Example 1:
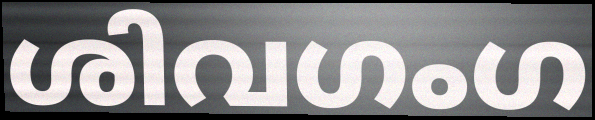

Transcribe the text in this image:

ശിവഗംഗ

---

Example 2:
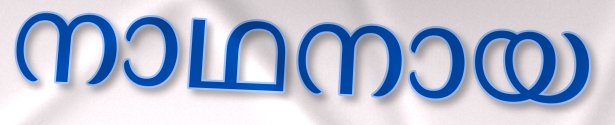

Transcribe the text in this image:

നാഥനായ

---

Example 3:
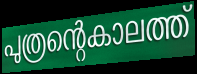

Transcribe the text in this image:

പുത്രന്റെകാലത്ത്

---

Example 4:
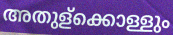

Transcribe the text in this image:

അതുള്ക്കൊള്ളും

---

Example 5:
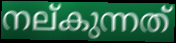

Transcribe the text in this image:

നല്കുന്നത്